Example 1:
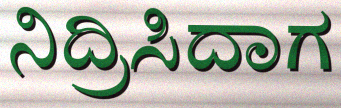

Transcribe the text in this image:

ನಿದ್ರಿಸಿದಾಗ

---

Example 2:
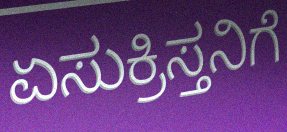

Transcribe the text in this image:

ಏಸುಕ್ರಿಸ್ತನಿಗೆ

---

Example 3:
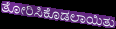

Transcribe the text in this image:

ತೋರಿಸಿಕೊಡಲಾಯಿತು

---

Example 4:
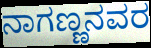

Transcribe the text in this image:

ನಾಗಣ್ಣನವರ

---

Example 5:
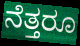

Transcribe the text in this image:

ನೆತ್ತರೂ